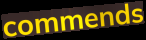
commends